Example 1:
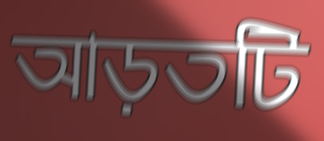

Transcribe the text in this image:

আড়তটি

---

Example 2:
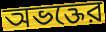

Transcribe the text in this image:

অভক্তের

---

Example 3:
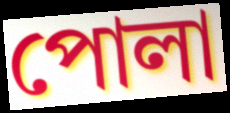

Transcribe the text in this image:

পোলা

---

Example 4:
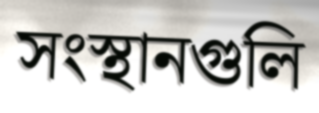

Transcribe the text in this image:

সংস্থানগুলি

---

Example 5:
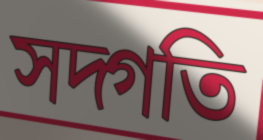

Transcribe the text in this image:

সদ্গতি